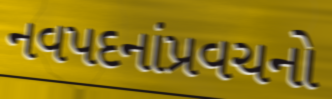
નવપદનાંપ્રવચનો